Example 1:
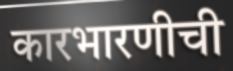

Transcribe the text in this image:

कारभारणीची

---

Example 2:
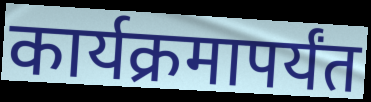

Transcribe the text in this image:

कार्यक्रमापर्यंत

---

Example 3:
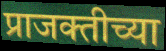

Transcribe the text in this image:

प्राजक्तीच्या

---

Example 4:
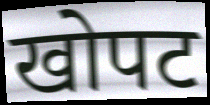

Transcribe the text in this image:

खोपट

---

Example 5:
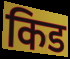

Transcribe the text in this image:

किड